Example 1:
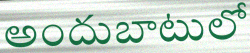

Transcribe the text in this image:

అందుబాటులో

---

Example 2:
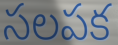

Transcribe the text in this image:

సలపక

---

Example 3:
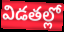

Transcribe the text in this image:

విడతల్లో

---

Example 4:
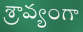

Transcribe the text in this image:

శ్రావ్యంగా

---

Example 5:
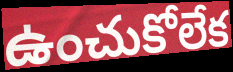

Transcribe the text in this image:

ఉంచుకోలేక